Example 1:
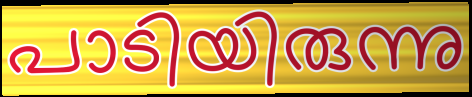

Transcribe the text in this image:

പാടിയിരുന്നു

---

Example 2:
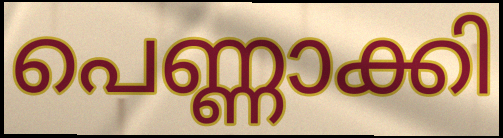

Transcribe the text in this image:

പെണ്ണാക്കി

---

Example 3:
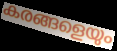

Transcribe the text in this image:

കരങ്ങളെയും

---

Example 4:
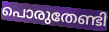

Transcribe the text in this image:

പൊരുതേണ്ടി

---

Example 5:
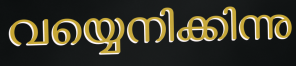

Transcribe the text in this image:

വയ്യെനിക്കിന്നു